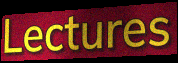
Lectures